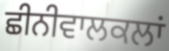
ਛੀਨੀਵਾਲਕਲਾਂ